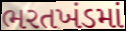
ભરતખંડમાં